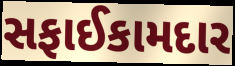
સફાઈકામદાર